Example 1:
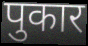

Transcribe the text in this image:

पुकार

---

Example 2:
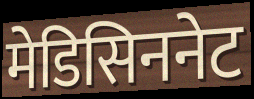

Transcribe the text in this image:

मेडिसिननेट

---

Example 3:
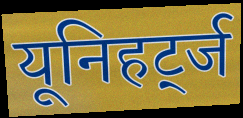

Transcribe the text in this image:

यूनिहर्ट्ज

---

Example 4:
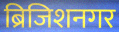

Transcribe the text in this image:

ब्रिजिशनगर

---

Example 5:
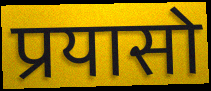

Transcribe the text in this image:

प्रयासो